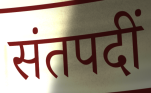
संतपदीं